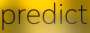
predict